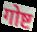
गोष्ट